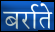
बर्राते